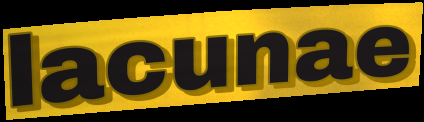
lacunae